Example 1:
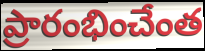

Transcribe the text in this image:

ప్రారంభించేంత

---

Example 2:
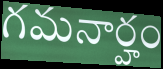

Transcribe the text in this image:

గమనార్హం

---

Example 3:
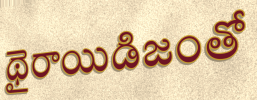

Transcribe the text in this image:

థైరాయిడిజంతో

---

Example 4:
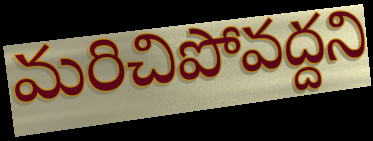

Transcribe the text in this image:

మరిచిపోవద్దని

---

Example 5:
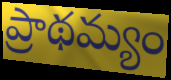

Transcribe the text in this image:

ప్రాథమ్యం